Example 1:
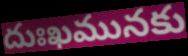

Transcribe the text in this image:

దుఃఖమునకు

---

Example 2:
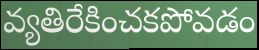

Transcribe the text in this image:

వ్యతిరేకించకపోవడం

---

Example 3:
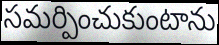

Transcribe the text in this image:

సమర్పించుకుంటాను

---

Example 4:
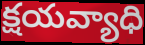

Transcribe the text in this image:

క్షయవ్యాధి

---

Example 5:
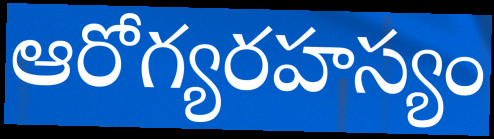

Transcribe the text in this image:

ఆరోగ్యరహస్యం